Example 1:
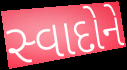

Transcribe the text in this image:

સ્વાદોને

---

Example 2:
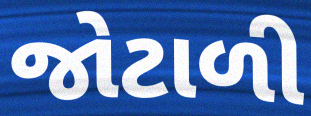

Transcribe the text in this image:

જોટાળી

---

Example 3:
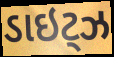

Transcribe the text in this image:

ડાઇટ્ઝ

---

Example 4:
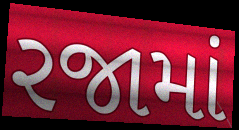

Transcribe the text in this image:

રજામાં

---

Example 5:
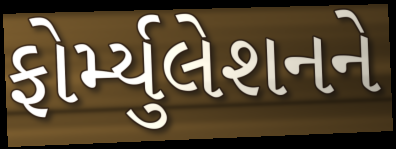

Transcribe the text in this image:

ફોર્મ્યુલેશનને